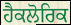
ਹੈਕਲੋਰਿਕ